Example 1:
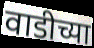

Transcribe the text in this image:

वाडीच्या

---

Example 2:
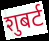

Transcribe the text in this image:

शुबर्ट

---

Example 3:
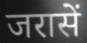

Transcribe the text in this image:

जरासें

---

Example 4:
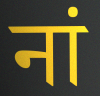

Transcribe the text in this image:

नां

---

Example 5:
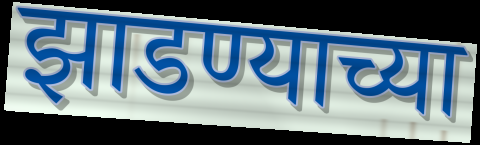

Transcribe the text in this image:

झाडण्याच्या